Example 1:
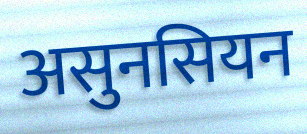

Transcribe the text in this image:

असुनसियन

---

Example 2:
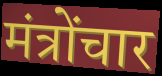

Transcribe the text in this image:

मंत्रोंचार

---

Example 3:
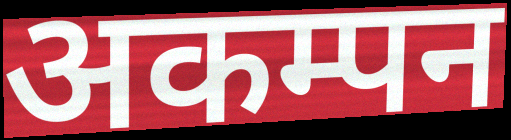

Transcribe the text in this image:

अकम्पन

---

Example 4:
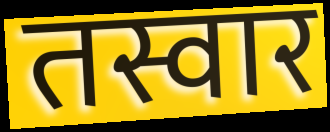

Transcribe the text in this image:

तस्वार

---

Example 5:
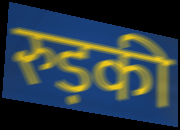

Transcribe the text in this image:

रुड़की